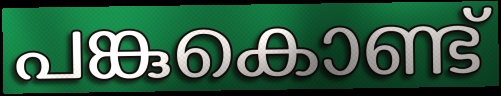
പങ്കുകൊണ്ട്